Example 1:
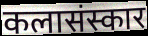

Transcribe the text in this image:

कलासंस्कार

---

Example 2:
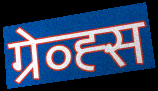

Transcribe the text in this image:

ग्रेव्ह्स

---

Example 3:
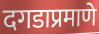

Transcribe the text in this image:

दगडाप्रमाणे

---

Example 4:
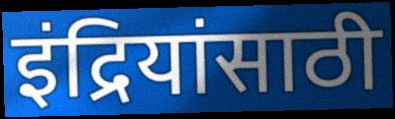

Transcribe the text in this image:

इंद्रियांसाठी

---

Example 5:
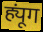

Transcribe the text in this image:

ह्यूंग